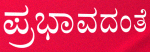
ಪ್ರಭಾವದಂತೆ